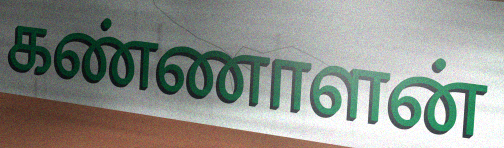
கண்ணாளன்